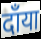
दाँया